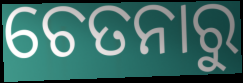
ଚେତନାରୁ